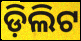
ଡ଼ିଲିଟ